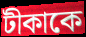
টীকাকে